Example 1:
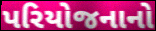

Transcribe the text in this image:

પરિયોજનાનો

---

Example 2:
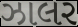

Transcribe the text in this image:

ઝાલર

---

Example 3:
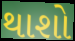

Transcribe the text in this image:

થાશો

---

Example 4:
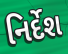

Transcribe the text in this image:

નિર્દેશ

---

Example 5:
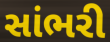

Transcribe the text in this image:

સાંભરી